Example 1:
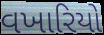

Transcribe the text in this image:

વખારિયો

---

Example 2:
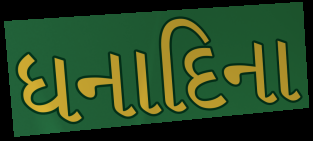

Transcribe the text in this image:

ધનાદિના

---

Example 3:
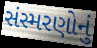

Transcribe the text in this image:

સંસ્મરણોનું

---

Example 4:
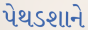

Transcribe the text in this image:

પેથડશાને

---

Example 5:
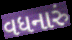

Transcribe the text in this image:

વધનારું